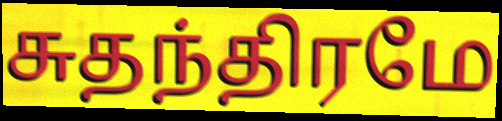
சுதந்திரமே